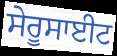
ਸੇਰੂਸਾਈਟ